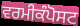
ਵਰਮੀਕੰਪੋਸਟ